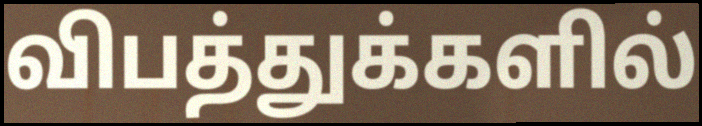
விபத்துக்களில்